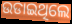
ଉଡାଇଥିଲେ